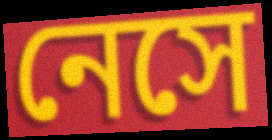
নেসে